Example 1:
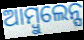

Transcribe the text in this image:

ଆମ୍ବୁଲେନ୍ସ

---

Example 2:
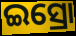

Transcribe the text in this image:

ଇସ୍ରୋ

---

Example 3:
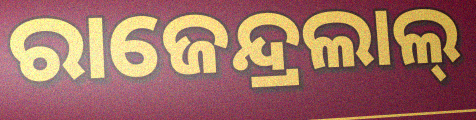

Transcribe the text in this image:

ରାଜେନ୍ଦ୍ରଲାଲ୍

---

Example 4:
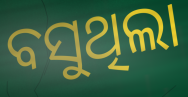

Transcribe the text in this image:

ବସୁଥିଲା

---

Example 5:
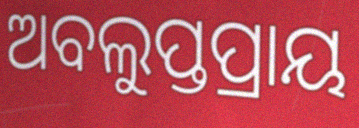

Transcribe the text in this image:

ଅବଲୁପ୍ତପ୍ରାୟ